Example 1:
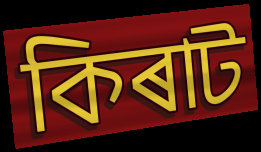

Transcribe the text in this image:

কিৰাট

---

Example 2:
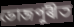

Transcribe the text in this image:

ভোজপুৰীত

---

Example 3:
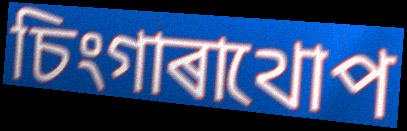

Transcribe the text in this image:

চিংগাৰাথোপ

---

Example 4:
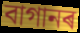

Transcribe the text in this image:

বাগানৰ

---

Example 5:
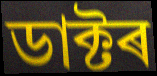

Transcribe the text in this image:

ডাক্টৰ